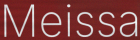
Meissa